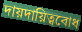
দায়দায়িত্ববোধ